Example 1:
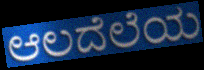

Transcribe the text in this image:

ಆಲದೆಲೆಯ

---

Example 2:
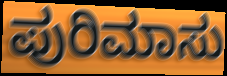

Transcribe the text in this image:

ಪುರಿಮಾಸು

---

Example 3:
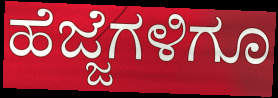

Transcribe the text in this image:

ಹೆಜ್ಜೆಗಳಿಗೂ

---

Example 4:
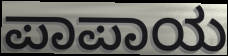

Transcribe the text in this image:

ಪಾಪಾಯ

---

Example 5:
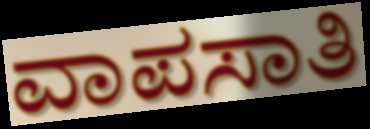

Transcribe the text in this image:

ವಾಪಸಾತಿ